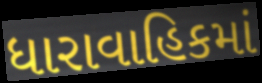
ધારાવાહિકમાં